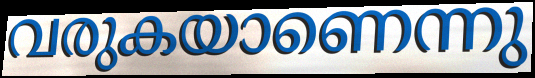
വരുകയാണെന്നു